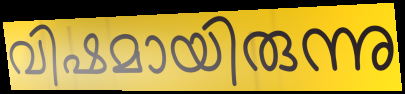
വിഷമായിരുന്നു